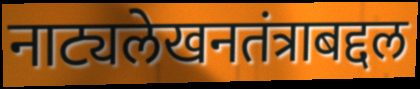
नाट्यलेखनतंत्राबद्दल